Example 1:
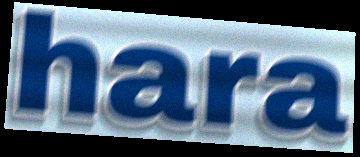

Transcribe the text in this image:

hara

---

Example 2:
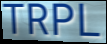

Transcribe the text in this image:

TRPL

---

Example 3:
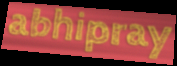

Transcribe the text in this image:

abhipray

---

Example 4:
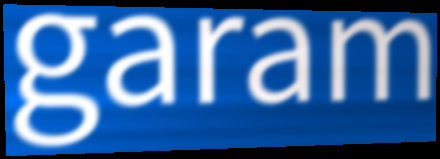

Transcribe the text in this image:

garam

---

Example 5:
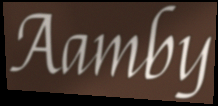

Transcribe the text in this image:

Aamby